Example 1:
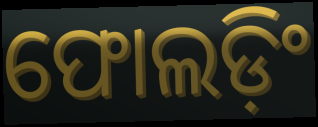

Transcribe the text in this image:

ଫୋଲଡ଼ିଂ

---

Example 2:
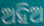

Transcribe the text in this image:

ଅହିଅ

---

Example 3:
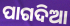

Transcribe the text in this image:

ପାଗଦିଆ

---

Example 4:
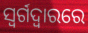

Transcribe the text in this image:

ସ୍ୱର୍ଗଦ୍ୱାରରେ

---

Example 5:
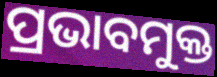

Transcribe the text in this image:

ପ୍ରଭାବମୁକ୍ତ